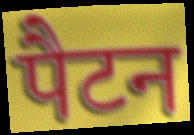
पैटन